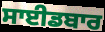
ਸਾਈਡਬਾਰ